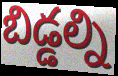
బిడ్డల్ని